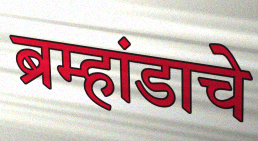
ब्रम्हांडाचे